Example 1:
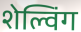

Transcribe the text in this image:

शेल्विंग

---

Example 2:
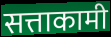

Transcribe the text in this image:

सत्ताकामी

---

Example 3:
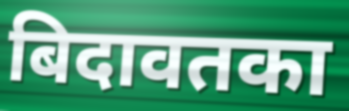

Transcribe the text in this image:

बिदावतका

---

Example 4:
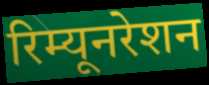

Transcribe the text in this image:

रिम्यूनरेशन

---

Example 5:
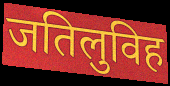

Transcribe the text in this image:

जतिलुविह